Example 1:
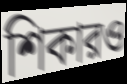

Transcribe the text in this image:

শিকারও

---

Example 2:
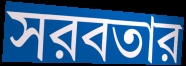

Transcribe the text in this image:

সরবতার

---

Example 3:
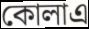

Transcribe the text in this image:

কোলাএ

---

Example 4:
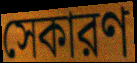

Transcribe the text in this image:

সেকারণ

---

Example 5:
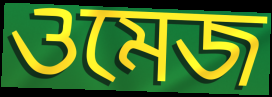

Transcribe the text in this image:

ওমেজ